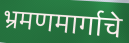
भ्रमणमार्गाचे